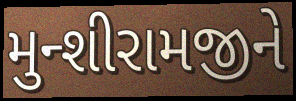
મુન્શીરામજીને